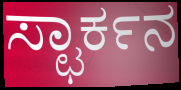
ಸ್ಟಾರ್ಕನ